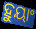
ହୁୟାଂ